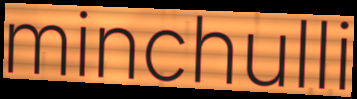
minchulli